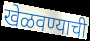
खेळवण्याची